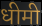
धीमी